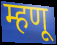
म्हणू